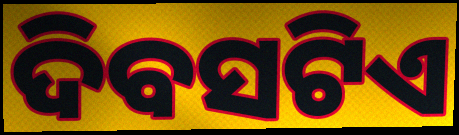
ଦିବସଟିଏ